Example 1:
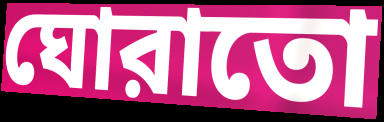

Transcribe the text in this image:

ঘোরাতো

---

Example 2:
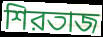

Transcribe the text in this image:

শিরতাজ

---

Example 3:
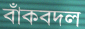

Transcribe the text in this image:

বাঁকবদল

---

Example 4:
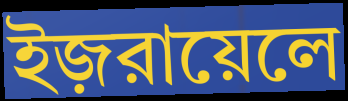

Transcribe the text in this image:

ইজ়রায়েলে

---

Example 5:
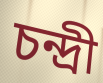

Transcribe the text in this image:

চন্দ্রী